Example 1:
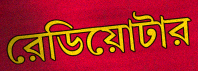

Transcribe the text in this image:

রেডিয়োটার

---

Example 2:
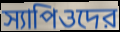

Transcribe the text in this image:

স্যাপিওদের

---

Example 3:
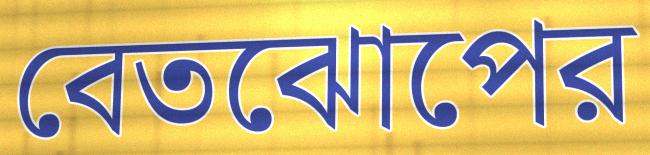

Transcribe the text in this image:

বেতঝোপের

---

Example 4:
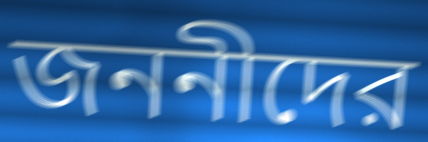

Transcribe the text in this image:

জননীদের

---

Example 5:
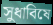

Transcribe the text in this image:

সুধাবিষে